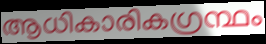
ആധികാരികഗ്രന്ഥം